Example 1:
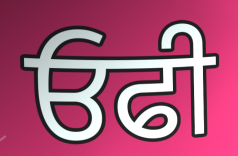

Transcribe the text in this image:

ਓਫੀ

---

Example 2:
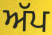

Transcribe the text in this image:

ਅੱਪ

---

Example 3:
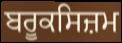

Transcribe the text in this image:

ਬਰੂਕਸਿਜ਼ਮ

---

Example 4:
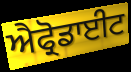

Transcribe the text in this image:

ਐਫ੍ਰੋਡਾਈਟ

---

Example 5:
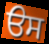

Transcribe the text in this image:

ੳਸ